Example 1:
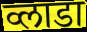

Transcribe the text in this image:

व्लाडा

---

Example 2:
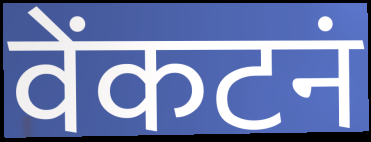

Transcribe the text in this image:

वेंकटनं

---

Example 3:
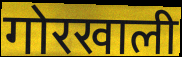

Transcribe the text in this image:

गोरखाली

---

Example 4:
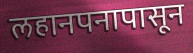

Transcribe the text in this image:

लहानपनापासून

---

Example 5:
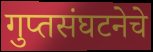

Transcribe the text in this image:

गुप्तसंघटनेचे